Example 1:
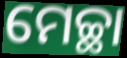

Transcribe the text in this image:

ମେଚ୍ଛା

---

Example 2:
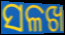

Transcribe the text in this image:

ସଳଖ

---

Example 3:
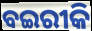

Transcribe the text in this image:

ବଇରୀକି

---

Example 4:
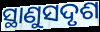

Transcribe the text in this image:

ସ୍ଥାଣୁସଦୃଶ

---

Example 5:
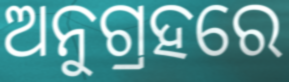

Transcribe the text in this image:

ଅନୁଗ୍ରହରେ